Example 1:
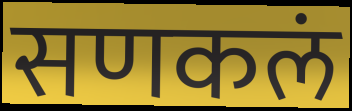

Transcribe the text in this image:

सणकलं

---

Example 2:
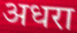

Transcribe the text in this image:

अधरा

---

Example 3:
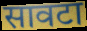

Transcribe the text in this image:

सावटा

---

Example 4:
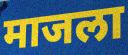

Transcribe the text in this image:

माजला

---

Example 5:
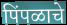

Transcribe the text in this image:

पिंपळाचे